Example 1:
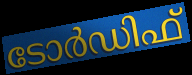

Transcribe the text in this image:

ടോർഡിഫ്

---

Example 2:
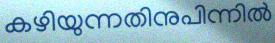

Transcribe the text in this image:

കഴിയുന്നതിനുപിന്നിൽ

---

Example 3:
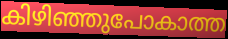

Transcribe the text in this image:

കിഴിഞ്ഞുപോകാത്ത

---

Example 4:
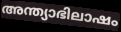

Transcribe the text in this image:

അന്ത്യാഭിലാഷം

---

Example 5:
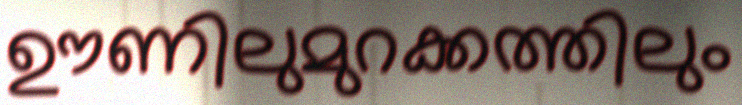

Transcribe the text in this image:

ഊണിലുമുറക്കത്തിലും